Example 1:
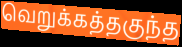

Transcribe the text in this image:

வெறுக்கத்தகுந்த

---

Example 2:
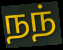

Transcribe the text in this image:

நந்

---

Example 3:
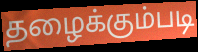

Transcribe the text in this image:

தழைக்கும்படி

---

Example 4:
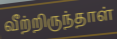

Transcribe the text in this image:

வீற்றிருந்தாள்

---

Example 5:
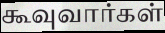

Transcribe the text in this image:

கூவுவார்கள்